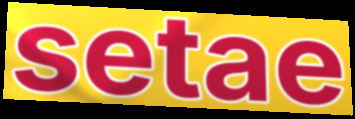
setae